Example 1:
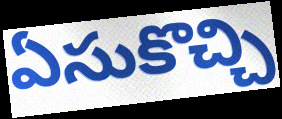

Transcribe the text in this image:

ఏసుకొచ్చి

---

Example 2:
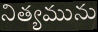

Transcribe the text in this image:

నిత్యమును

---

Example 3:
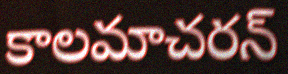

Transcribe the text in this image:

కాలమాచరన్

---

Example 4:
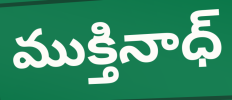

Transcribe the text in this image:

ముక్తినాధ్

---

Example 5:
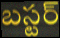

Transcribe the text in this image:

బస్టర్